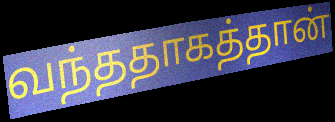
வந்ததாகத்தான்